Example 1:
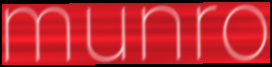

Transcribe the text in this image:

munro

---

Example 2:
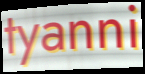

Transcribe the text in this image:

tyanni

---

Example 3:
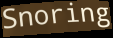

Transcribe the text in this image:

Snoring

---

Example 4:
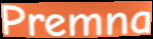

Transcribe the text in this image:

Premna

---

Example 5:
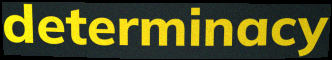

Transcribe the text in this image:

determinacy